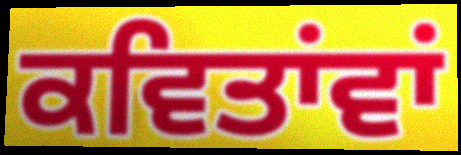
ਕਵਿਤਾਂਵਾਂ